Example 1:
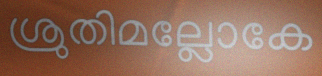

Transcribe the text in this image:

ശ്രുതിമല്ലോകേ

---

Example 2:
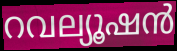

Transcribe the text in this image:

റവല്യൂഷൻ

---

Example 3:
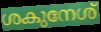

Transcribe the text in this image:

ശകുനേശ്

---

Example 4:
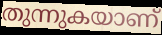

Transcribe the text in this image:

തുന്നുകയാണ്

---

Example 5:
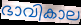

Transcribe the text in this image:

ഭാവികാല